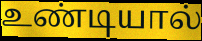
உண்டியால்